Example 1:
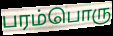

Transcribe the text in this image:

பரம்பொரு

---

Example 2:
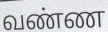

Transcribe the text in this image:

வண்ண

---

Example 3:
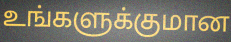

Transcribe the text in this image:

உங்களுக்குமான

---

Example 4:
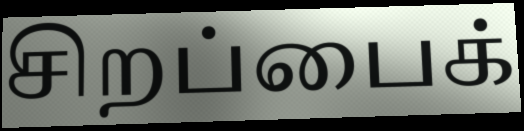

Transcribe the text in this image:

சிறப்பைக்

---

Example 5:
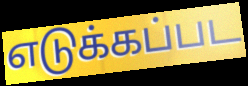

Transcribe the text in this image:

எடுக்கப்பட